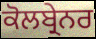
ਕੋਲਬ੍ਰੇਨਰ